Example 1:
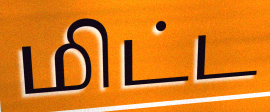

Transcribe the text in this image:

மிட்ட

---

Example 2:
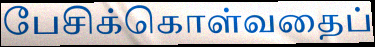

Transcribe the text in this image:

பேசிக்கொள்வதைப்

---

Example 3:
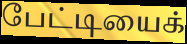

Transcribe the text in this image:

பேட்டியைக்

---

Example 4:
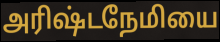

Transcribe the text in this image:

அரிஷ்டநேமியை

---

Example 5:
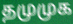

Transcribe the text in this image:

தமுமுக